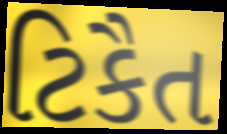
ટિકૈત